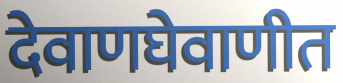
देवाणघेवाणीत